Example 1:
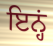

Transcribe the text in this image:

ਇਨ੍ਹਂ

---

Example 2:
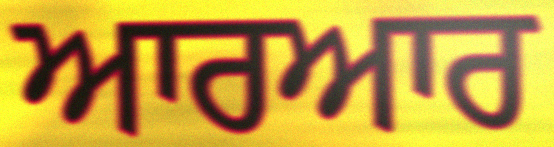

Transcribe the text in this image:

ਆਰਆਰ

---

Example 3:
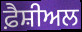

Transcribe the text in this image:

ਫ਼ੈਸ਼ੀਅਲ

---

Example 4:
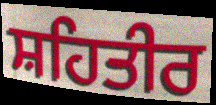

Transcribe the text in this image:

ਸ਼ਹਿਤੀਰ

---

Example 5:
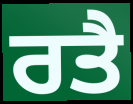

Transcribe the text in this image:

ਰਤੈ